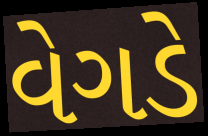
વેગડે